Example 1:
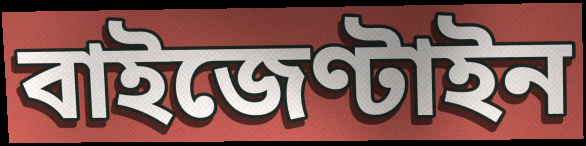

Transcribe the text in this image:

বাইজেণ্টাইন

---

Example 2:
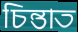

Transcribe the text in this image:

চিন্তাত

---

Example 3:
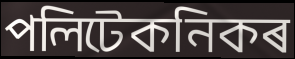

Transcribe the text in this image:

পলিটেকনিকৰ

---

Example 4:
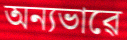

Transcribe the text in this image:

অন্যভাৱে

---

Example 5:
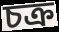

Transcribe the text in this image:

চক্ৰ